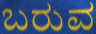
ಬರುವ